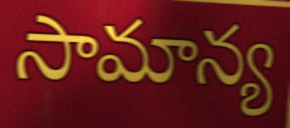
సామాన్య